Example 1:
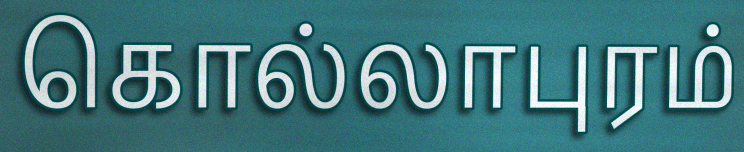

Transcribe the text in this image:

கொல்லாபுரம்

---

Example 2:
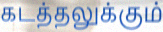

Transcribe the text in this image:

கடத்தலுக்கும்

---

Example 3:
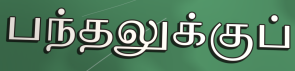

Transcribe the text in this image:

பந்தலுக்குப்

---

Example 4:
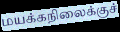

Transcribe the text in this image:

மயக்கநிலைக்குச்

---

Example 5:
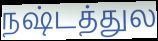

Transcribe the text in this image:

நஷ்டத்துல